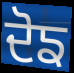
ਦੋਙ